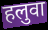
हलुवा